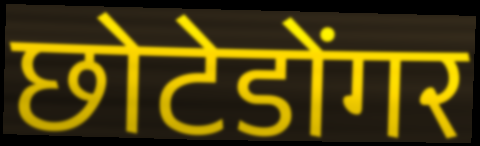
छोटेडोंगर